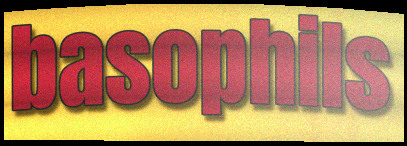
basophils